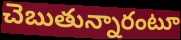
చెబుతున్నారంటూ